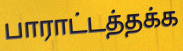
பாராட்டத்தக்க